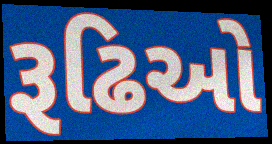
રૂઢિઓ